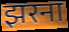
झरना